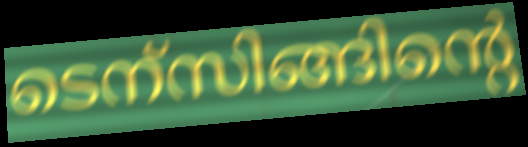
ടെന്സിങ്ങിന്റെ